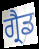
ਗ੍ਰੈਡ